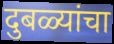
दुबळ्यांचा